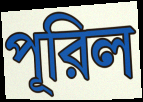
পূরিল